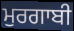
ਮੁਰਗਾਬੀ